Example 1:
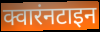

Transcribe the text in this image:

क्वारंनटाइन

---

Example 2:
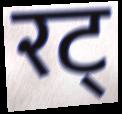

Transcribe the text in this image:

रट्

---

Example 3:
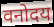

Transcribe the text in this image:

वनोदय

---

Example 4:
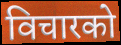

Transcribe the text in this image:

विचारको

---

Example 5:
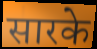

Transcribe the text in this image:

सारके